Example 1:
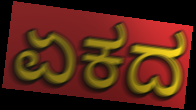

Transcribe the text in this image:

ಏಕದ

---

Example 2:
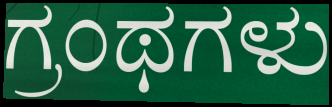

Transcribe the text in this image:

ಗ್ರಂಥಗಳು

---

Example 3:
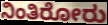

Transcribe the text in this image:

ನಿಂತಿರೋರು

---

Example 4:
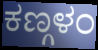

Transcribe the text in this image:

ಕಣ್ಗಳಂ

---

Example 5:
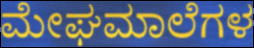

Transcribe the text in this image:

ಮೇಘಮಾಲೆಗಳ